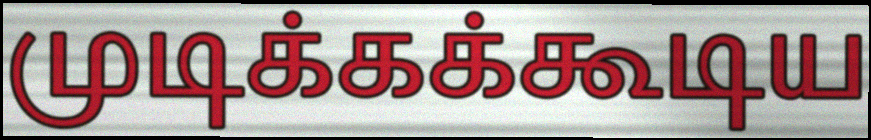
முடிக்கக்கூடிய